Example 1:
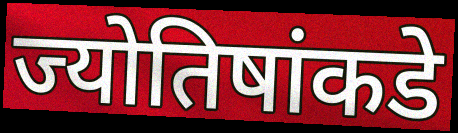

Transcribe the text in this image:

ज्योतिषांकडे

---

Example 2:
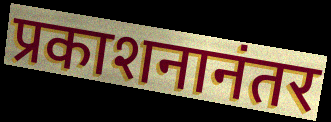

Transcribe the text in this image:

प्रकाशनानंतर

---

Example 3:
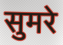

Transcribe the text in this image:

सुमरे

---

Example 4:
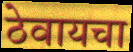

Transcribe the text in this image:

ठेवायचा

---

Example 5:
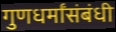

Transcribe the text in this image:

गुणधर्मांसंबंधी